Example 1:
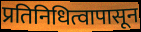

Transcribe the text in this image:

प्रतिनिधित्वापासून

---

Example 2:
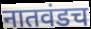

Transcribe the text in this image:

नातवंडच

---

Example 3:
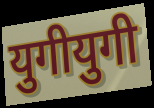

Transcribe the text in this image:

युगीयुगी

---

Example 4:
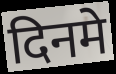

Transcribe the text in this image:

दिनमे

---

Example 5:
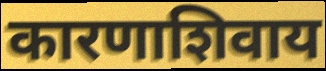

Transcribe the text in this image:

कारणाशिवाय